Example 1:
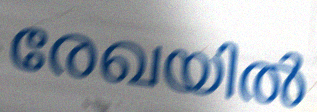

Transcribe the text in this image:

രേഖയിൽ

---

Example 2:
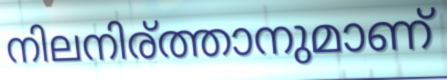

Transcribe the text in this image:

നിലനിര്ത്താനുമാണ്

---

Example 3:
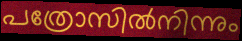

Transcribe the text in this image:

പത്രോസിൽനിന്നും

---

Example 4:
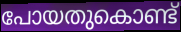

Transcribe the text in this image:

പോയതുകൊണ്ട്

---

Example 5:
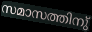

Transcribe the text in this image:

സമാസത്തിനു്